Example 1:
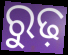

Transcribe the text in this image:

ରୁଢ଼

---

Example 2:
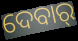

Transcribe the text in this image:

ଦେବାର୍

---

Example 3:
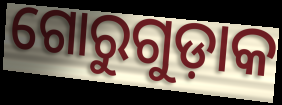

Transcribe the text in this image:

ଗୋରୁଗୁଡ଼ାକ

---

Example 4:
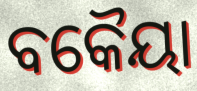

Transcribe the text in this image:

ବକୈୟା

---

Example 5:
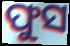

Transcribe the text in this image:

ଫୁସ